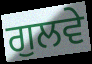
ਗੁਲਵੇ